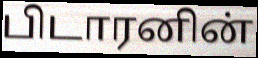
பிடாரனின்